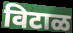
विटाळ